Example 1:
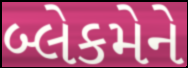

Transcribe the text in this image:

બ્લેકમેને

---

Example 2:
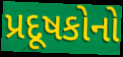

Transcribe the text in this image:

પ્રદૂષકોનો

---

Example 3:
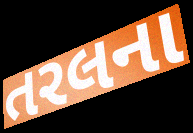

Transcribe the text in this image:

તરલના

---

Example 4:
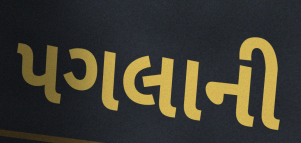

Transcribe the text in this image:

પગલાની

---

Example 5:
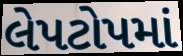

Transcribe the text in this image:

લેપટોપમાં